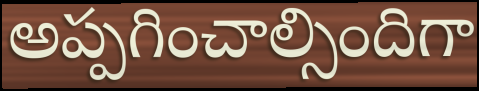
అప్పగించాల్సిందిగా